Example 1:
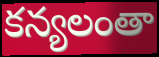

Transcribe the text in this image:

కన్యలంతా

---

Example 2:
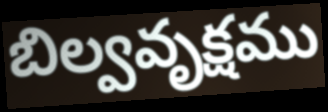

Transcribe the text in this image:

బిల్వవృక్షము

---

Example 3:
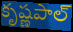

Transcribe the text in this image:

కృష్ణపాల్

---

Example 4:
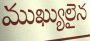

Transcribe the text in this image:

ముఖ్యులైన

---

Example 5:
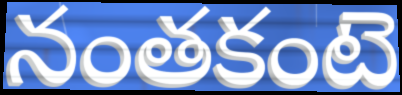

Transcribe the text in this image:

నంతకంటె